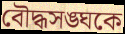
বৌদ্ধসঙ্ঘকে